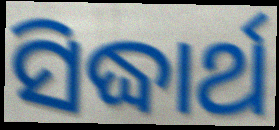
ସିଦ୍ଧାର୍ଥ